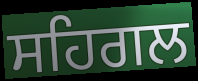
ਸਹਿਗਲ